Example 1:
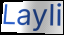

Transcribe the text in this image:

Layli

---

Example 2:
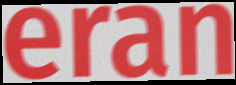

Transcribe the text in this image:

eran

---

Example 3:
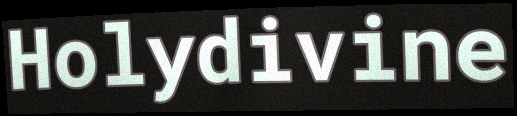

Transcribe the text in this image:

Holydivine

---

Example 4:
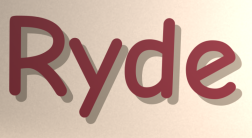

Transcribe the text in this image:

Ryde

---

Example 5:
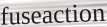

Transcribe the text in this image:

fuseaction